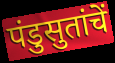
पंडुसुतांचें